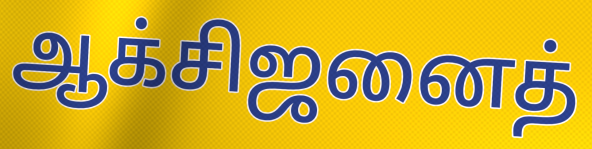
ஆக்சிஜனைத்